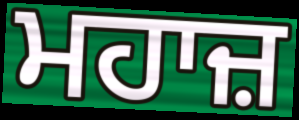
ਮਹਾਜ਼